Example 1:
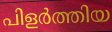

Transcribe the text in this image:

പിളർത്തിയ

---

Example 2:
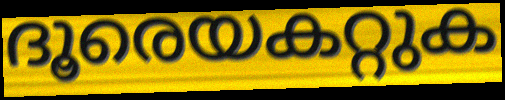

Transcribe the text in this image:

ദൂരെയകറ്റുക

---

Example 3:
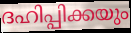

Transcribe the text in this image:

ദഹിപ്പിക്കയും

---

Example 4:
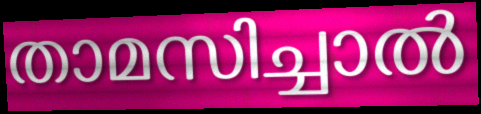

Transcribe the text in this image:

താമസിച്ചാൽ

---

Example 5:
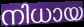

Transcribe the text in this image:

നിധായ